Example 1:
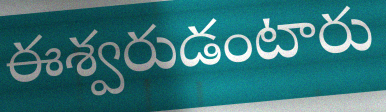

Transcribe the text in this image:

ఈశ్వరుడంటారు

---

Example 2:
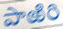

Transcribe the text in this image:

పాఱిరి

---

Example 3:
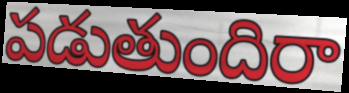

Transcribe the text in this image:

పడుతుందిరా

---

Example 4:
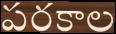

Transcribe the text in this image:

పరకాల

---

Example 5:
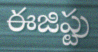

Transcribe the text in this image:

ఈజిప్టు